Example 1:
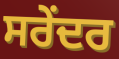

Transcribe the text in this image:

ਸਰੇਂਦਰ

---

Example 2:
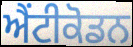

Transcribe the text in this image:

ਐਂਟੀਕੋਡਨ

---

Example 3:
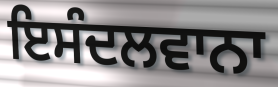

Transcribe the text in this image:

ਇਸੰਦਲਵਾਨਾ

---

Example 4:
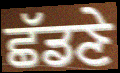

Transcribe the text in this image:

ਛੱਡਣੇ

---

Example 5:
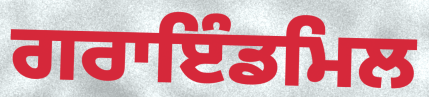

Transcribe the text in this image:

ਗਰਾਇੰਡਮਿਲ